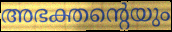
അഭക്തന്റെയും